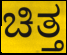
ಚಿತ್ತ